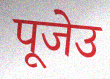
पूजेउ